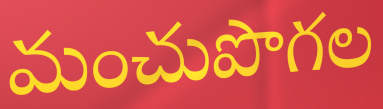
మంచుపొగల